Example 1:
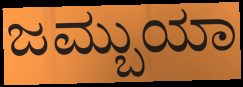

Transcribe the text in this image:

ಜಮ್ಬುಯಾ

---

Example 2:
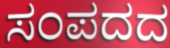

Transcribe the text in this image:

ಸಂಪದದ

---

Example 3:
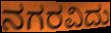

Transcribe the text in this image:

ನಗರವಿದು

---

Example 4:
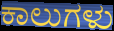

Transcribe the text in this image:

ಕಾಲುಗಳು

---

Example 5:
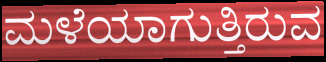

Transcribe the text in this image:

ಮಳೆಯಾಗುತ್ತಿರುವ